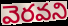
వెరవని